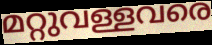
മറ്റുവള്ളവരെ